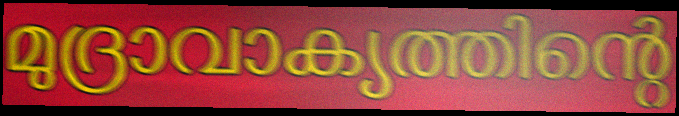
മുദ്രാവാക്യത്തിന്റെ